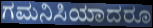
ಗಮನಿಸಿಯಾದರೂ